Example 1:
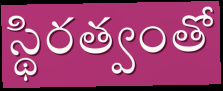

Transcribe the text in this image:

స్థిరత్వంతో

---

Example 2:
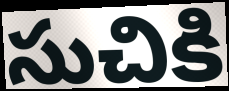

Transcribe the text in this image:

సుచికి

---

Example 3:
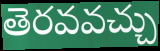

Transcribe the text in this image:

తెరవవచ్చు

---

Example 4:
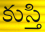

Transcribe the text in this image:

కుస్తి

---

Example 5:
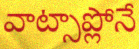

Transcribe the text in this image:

వాట్సాప్లోనే